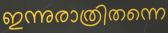
ഇന്നുരാത്രിതന്നെ